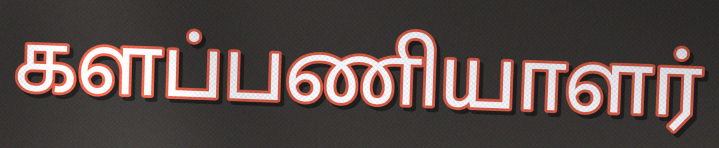
களப்பணியாளர்